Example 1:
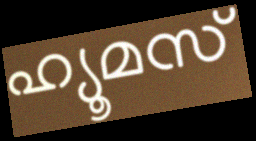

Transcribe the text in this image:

ഹ്യൂമസ്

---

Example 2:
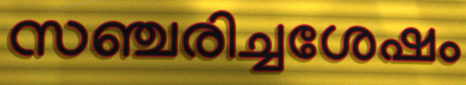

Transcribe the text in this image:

സഞ്ചരിച്ചശേഷം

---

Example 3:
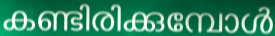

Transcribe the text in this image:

കണ്ടിരിക്കുമ്പോൾ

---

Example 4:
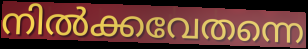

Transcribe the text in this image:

നിൽക്കവേതന്നെ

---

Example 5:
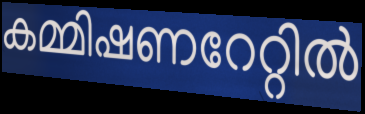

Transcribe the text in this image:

കമ്മിഷണറേറ്റിൽ